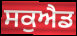
ਸਕੁਐਡ